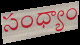
సంధ్యాం